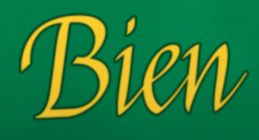
Bien